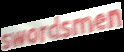
swordsmen